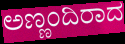
ಅಣ್ಣಂದಿರಾದ